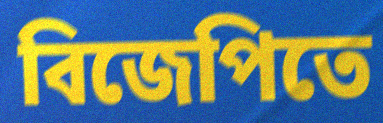
বিজেপিতে